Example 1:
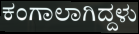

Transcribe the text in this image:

ಕಂಗಾಲಾಗಿದ್ದಳು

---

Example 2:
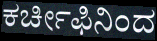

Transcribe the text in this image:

ಕರ್ಚೀಫಿನಿಂದ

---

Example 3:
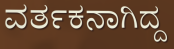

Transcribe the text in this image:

ವರ್ತಕನಾಗಿದ್ದ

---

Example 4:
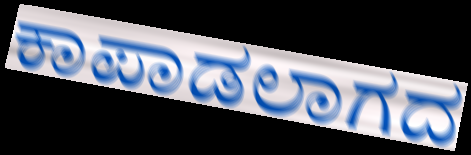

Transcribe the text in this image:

ಕಾಪಾಡಲಾಗದ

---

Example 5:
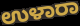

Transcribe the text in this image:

ಉಳಾರಾ